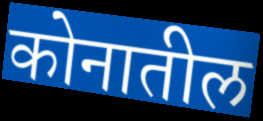
कोनातील